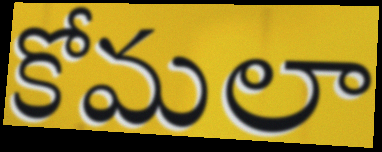
కోమలా